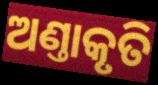
ଅଣ୍ତାକୃତି